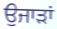
ਉਜਾੜਾਂ